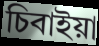
চিবাইয়া